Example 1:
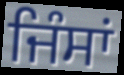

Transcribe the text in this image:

ਜਿੰਸਾਂ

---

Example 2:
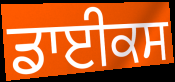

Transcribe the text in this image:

ਡਾਈਕਸ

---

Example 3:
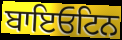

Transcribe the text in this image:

ਬਾਇਓਟਿਨ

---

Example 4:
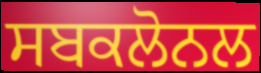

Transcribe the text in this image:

ਸਬਕਲੋਨਲ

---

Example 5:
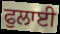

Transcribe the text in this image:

ਫੁਲਾਈ